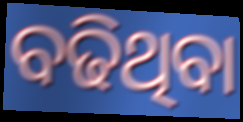
ବଢିଥିବା